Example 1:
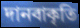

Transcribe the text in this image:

দানবাকৃতি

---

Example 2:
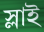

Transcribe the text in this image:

স্লাই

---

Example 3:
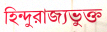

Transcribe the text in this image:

হিন্দুরাজ্যভুক্ত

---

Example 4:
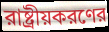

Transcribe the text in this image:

রাষ্ট্রীয়করণের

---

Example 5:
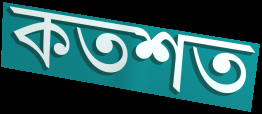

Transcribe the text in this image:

কতশত